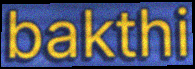
bakthi